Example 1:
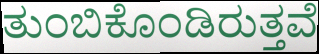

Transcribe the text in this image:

ತುಂಬಿಕೊಂಡಿರುತ್ತವೆ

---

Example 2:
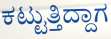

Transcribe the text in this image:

ಕಟ್ಟುತ್ತಿದ್ದಾಗ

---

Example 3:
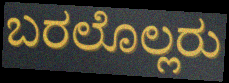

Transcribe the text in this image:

ಬರಲೊಲ್ಲರು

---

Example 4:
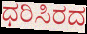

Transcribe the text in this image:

ಧರಿಸಿರದ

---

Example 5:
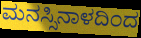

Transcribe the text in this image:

ಮನಸ್ಸಿನಾಳದಿಂದ